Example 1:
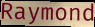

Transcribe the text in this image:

Raymond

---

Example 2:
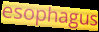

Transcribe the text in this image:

esophagus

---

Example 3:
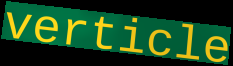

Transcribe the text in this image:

verticle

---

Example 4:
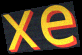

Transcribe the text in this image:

xe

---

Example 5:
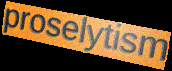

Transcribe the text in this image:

proselytism